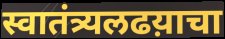
स्वातंत्र्यलढय़ाचा